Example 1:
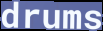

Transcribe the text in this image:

drums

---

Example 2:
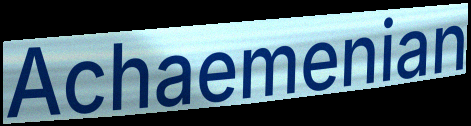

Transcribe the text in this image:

Achaemenian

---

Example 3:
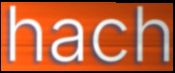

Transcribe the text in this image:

hach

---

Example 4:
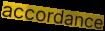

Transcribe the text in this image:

accordance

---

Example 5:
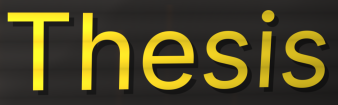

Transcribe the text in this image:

Thesis